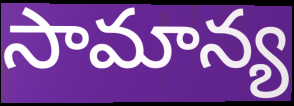
సామాన్య